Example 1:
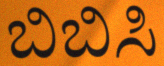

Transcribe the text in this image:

ಬಿಬಿಸಿ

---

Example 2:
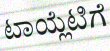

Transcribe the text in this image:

ಟಾಯ್ಲೆಟಿಗೆ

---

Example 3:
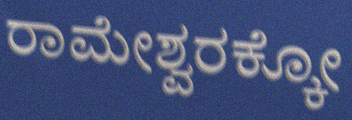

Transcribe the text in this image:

ರಾಮೇಶ್ವರಕ್ಕೋ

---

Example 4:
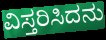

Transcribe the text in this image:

ವಿಸ್ತರಿಸಿದನು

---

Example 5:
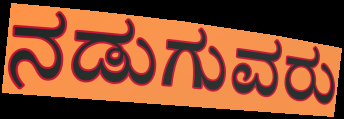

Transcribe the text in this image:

ನಡುಗುವರು